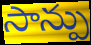
సాన్పు